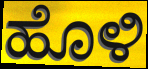
ಹೊಳಿ